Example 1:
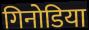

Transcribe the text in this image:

गिनोडिया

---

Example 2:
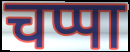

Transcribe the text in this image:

चप्पा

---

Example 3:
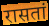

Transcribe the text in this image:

रासतां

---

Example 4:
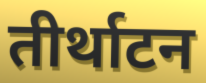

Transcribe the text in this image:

तीर्थाटन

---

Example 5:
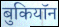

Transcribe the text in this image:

बुकियॉन